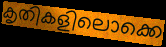
കൃതികളിലൊക്കെ